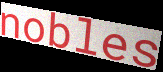
nobles